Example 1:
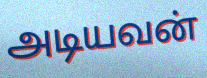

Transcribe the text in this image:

அடியவன்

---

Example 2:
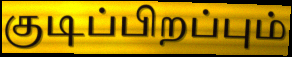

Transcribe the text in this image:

குடிப்பிறப்பும்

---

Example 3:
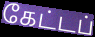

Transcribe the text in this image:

கேட்டப்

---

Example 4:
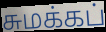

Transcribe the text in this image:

சுமக்கப்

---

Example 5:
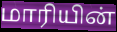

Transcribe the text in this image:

மாரியின்